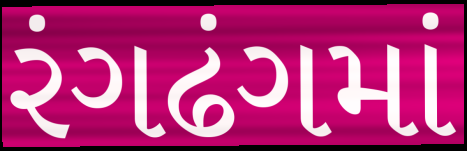
રંગઢંગમાં